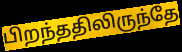
பிறந்ததிலிருந்தே